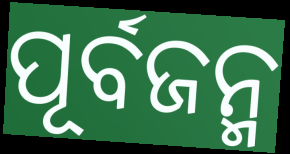
ପୂର୍ବଜନ୍ମ